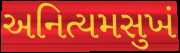
અનિત્યમસુખં